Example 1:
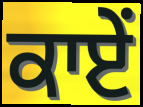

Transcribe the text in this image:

ਕਾਏਂ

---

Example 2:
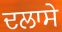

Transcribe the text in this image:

ਦਲਾਸੇ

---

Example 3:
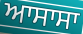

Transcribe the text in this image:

ਆਸਾਸਾ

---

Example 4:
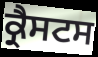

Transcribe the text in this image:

ਕ੍ਰੈਸਟਸ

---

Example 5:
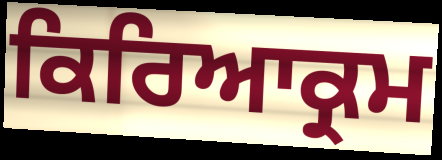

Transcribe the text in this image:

ਕਿਰਿਆਕ੍ਰਮ